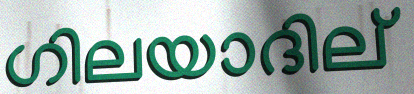
ഗിലയാദില്